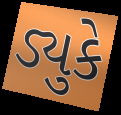
ડ્યુકે